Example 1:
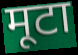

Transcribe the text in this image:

मूटा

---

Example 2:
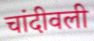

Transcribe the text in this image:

चांदीवली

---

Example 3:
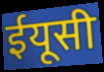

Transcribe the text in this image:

ईयूसी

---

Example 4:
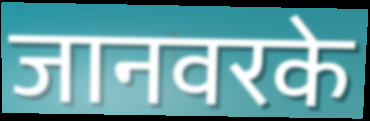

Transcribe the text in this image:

जानवरके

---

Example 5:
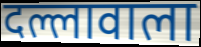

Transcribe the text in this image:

दल्लावाला